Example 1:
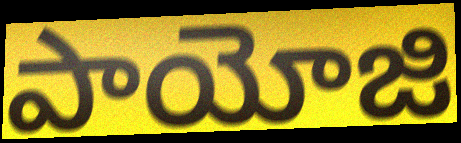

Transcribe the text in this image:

పాయోజి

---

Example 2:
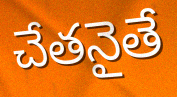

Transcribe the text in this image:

చేతనైతే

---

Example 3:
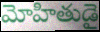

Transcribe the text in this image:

మోహితుడై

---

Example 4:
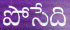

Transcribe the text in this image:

పోసేది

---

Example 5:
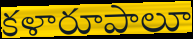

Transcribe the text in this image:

కళారూపాలూ